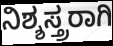
ನಿಶ್ಶಸ್ತ್ರರಾಗಿ